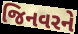
જિનવરને